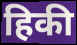
हिकी